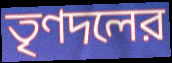
তৃণদলের